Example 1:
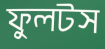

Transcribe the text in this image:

ফুলটস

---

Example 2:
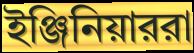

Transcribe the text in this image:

ইঞ্জিনিয়াররা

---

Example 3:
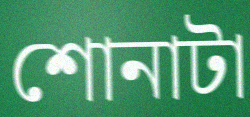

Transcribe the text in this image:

শোনাটা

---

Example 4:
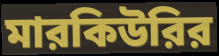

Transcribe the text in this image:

মারকিউরির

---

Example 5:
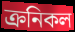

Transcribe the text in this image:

ক্রনিকল